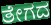
ತೇಗದ